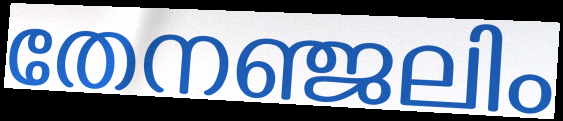
തേനഞ്ജലിം